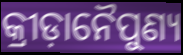
କ୍ରୀଡ଼ାନୈପୁଣ୍ୟ